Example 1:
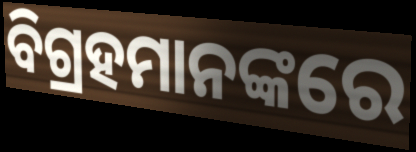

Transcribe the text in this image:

ବିଗ୍ରହମାନଙ୍କରେ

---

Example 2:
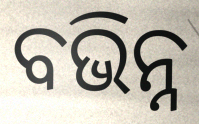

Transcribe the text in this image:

ବଭିନ୍ନ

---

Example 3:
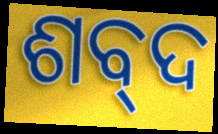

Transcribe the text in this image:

ଶବ୍‌ଦ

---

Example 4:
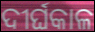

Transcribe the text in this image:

ଦୀର୍ଘକାଳ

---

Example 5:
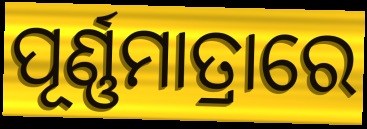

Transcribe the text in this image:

ପୂର୍ଣ୍ଣମାତ୍ରାରେ